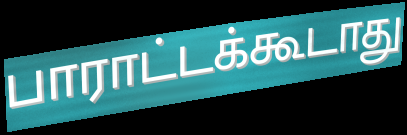
பாராட்டக்கூடாது